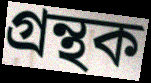
গ্ৰন্থক